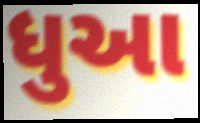
ધુઆ